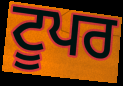
ਟੂਪਰ